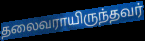
தலைவராயிருந்தவர்